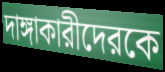
দাঙ্গাকারীদেরকে